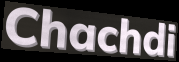
Chachdi